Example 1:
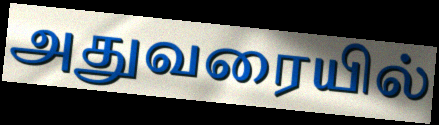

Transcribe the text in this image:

அதுவரையில்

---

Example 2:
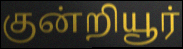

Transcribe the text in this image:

குன்றியூர்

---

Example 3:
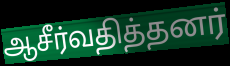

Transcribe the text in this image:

ஆசீர்வதித்தனர்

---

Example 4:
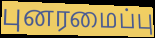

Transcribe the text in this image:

புனரமைப்பு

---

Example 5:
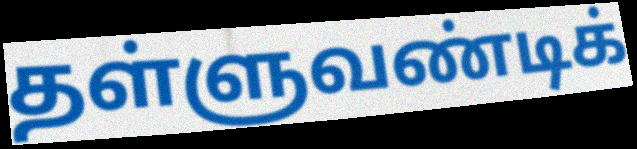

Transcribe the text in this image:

தள்ளுவண்டிக்